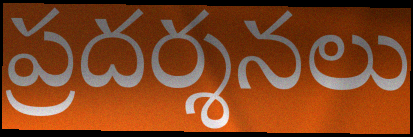
ప్రదర్శనలు